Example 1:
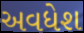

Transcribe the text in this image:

અવધેશ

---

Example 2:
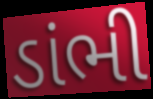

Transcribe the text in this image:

ડાંભી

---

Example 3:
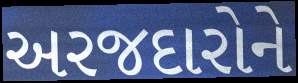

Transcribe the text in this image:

અરજદારોને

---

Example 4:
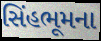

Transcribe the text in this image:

સિંહભૂમના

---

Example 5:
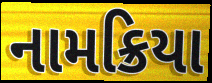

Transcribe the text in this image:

નામક્રિયા